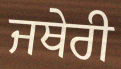
ਜਥੇਰੀ